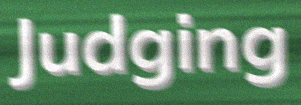
Judging